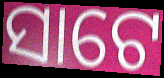
ସାଟେ